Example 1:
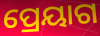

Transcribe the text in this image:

ପ୍ରେୟାଗ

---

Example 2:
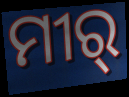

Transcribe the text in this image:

ମୀର୍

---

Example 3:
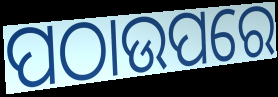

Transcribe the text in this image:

ପଠାଉପରେ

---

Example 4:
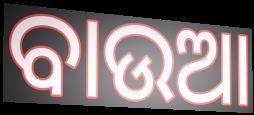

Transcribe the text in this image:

ବାଉଆ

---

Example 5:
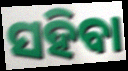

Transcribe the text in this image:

ସହିବା